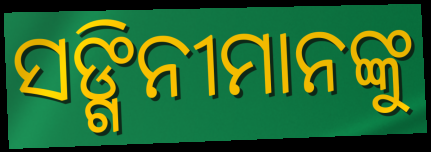
ସଙ୍ଗିନୀମାନଙ୍କୁ